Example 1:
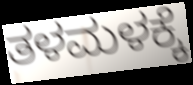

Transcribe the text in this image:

ತಳಮಳಕ್ಕೆ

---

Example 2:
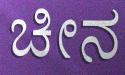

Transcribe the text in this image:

ಚೀನ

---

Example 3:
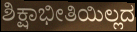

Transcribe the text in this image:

ಶಿಕ್ಷಾಭೀತಿಯಿಲ್ಲದ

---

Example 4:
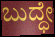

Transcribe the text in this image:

ಬುದ್ಧೇ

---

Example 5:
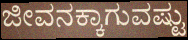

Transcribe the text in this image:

ಜೀವನಕ್ಕಾಗುವಷ್ಟು